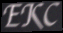
EKC